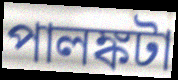
পালঙ্কটা